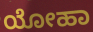
ಯೋಹಾ